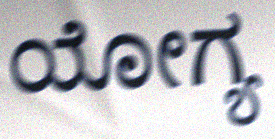
ಯೋಗ್ಯ